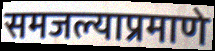
समजल्याप्रमाणे